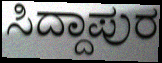
ಸಿದ್ದಾಪುರ